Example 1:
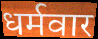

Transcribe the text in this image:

धर्मवार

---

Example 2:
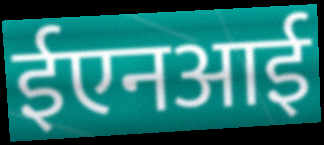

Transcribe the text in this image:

ईएनआई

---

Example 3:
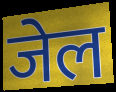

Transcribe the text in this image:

जेल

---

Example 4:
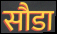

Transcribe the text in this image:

सौडा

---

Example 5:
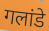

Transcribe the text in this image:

गलांडे